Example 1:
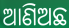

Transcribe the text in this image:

ଆଣିଅଛ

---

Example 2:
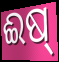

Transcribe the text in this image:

ଈଷ୍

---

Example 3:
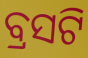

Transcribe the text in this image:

ବ୍ରସଟି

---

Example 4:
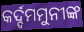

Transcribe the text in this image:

କର୍ଦ୍ଦମମୁନୀଙ୍କ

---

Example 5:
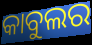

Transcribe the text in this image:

କାବୁଲର